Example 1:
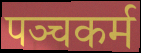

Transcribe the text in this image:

पञ्चकर्म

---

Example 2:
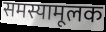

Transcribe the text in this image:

समस्यामूलक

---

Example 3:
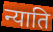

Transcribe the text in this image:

न्याति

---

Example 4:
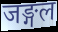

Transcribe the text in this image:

जङ्गल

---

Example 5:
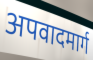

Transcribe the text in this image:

अपवादमार्ग